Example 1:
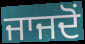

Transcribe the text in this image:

ਜਾਜਦੋਂ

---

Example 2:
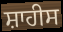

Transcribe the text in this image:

ਸ਼ਾਹੀਸ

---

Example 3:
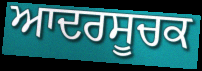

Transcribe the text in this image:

ਆਦਰਸੂਚਕ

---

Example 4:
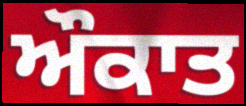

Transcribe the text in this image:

ਔਕਾਤ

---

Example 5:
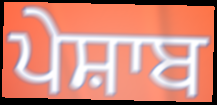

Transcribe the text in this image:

ਪੇਸ਼ਾਬ